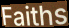
Faiths